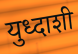
युध्दाशी